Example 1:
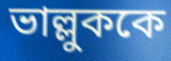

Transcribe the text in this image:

ভাল্লুককে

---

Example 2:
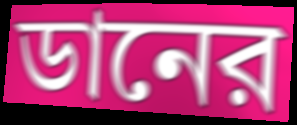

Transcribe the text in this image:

ডানের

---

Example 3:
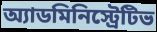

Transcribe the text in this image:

অ্যাডমিনিস্ট্রেটিভ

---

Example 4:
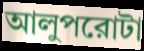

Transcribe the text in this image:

আলুপরোটা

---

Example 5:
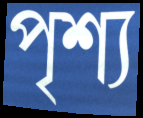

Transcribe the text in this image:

পৃশ্য